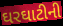
ઘરઘાટીની